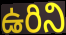
ఉరిని